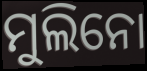
ମୁଲିନୋ